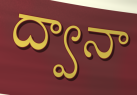
ద్వానా